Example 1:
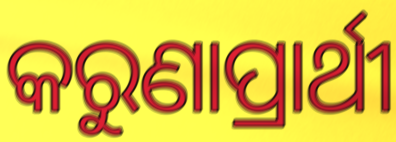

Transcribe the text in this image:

କରୁଣାପ୍ରାର୍ଥୀ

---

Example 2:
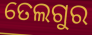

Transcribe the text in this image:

ତେଲଗୁର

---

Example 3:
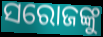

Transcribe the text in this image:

ସରୋଜଙ୍କୁ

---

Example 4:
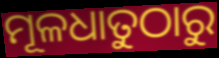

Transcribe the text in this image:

ମୂଳଧାତୁଠାରୁ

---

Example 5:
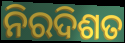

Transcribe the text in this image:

ନିରଦିଶତ